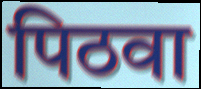
पिठवा